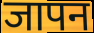
जापन